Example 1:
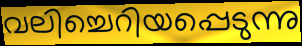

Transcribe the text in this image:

വലിച്ചെറിയപ്പെടുന്നു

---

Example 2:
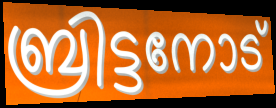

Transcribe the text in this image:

ബ്രിട്ടനോട്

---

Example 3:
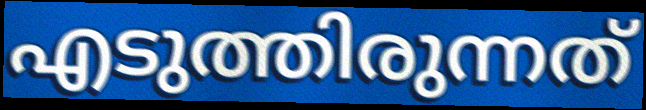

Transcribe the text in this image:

എടുത്തിരുന്നത്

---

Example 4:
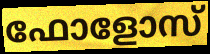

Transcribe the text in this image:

ഫോളോസ്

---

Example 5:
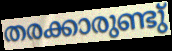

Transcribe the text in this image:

തരക്കാരുണ്ടു്